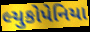
લ્યુકોપેનિયા